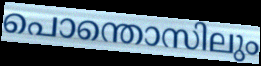
പൊന്തൊസിലും